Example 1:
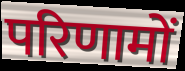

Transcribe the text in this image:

परिणामों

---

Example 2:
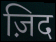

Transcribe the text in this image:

ज़िद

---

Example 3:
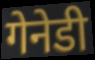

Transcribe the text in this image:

गेनेडी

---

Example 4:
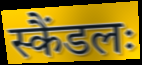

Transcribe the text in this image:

स्कैंडलः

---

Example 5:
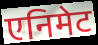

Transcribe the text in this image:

एनिमेट